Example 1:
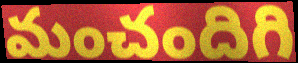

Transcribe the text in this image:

మంచందిగి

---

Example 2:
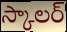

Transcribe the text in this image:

స్కాలర్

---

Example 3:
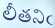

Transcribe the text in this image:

లీతనిఁ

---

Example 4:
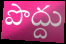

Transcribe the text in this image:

పొద్దు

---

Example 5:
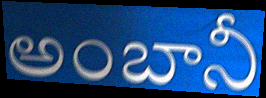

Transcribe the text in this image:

అంబానీ